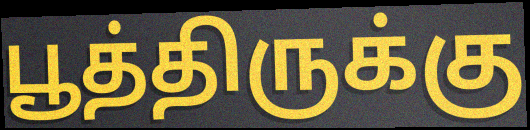
பூத்திருக்கு